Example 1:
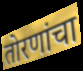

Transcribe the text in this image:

तोरणांचा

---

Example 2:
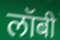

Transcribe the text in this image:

लॉबी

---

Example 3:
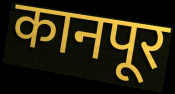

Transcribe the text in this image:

कानपूर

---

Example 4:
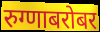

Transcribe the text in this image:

रुग्णाबरोबर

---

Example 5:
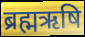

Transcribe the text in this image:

ब्रह्मऋषि